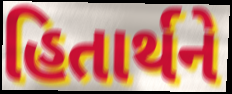
હિતાર્થને